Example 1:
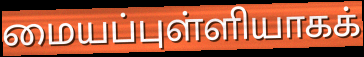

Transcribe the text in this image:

மையப்புள்ளியாகக்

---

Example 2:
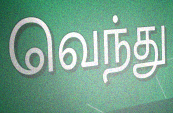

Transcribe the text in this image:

வெந்து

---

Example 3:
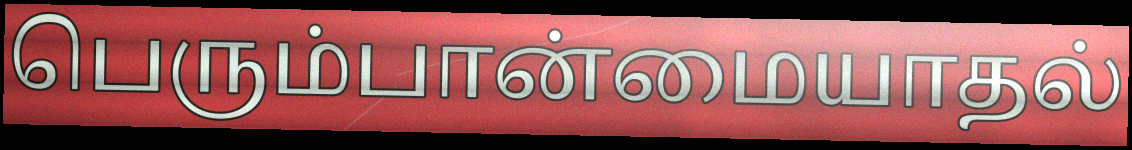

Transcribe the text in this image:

பெரும்பான்மையாதல்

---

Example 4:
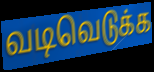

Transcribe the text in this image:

வடிவெடுக்க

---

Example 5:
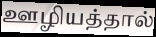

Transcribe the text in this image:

ஊழியத்தால்